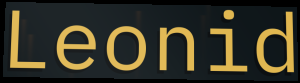
Leonid